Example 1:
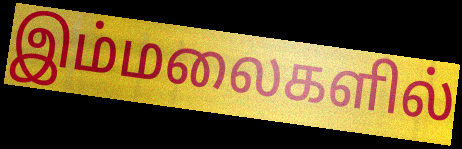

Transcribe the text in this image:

இம்மலைகளில்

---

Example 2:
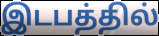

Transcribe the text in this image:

இடபத்தில்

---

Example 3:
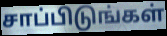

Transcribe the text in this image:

சாப்பிடுங்கள்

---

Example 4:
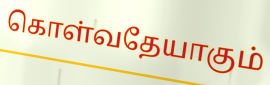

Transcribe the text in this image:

கொள்வதேயாகும்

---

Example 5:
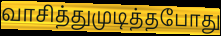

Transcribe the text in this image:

வாசித்துமுடித்தபோது